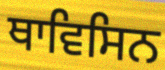
ਥਾਵਿਸਿਨ